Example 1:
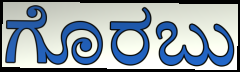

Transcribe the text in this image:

ಗೊರಬು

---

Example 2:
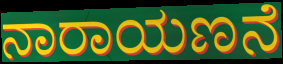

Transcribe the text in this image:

ನಾರಾಯಣನೆ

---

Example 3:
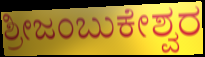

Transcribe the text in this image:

ಶ್ರೀಜಂಬುಕೇಶ್ವರ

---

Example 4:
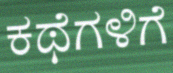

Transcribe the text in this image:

ಕಥೆಗಳಿಗೆ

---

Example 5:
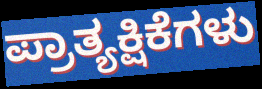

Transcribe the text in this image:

ಪ್ರಾತ್ಯಕ್ಷಿಕೆಗಳು